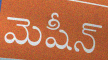
మెషీన్